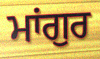
ਮਾਂਗੁਰ